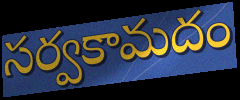
సర్వకామదం